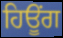
ਹਿਊੰਗ